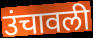
उंचावली